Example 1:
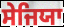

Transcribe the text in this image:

ਸੇਜਿਯਾ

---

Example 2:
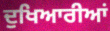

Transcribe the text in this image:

ਦੁਖਿਆਰੀਆਂ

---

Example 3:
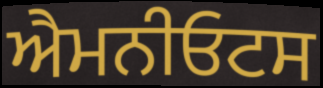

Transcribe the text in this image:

ਐਮਨੀਓਟਸ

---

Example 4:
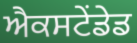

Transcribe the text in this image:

ਐਕਸਟੇਂਡੇਡ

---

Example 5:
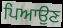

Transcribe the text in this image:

ਪਿਆਉਣ